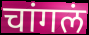
चांगलं